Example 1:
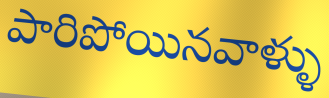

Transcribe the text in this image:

పారిపోయినవాళ్ళు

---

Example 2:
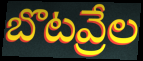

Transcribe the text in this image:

బొటవ్రేల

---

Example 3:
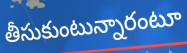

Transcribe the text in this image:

తీసుకుంటున్నారంటూ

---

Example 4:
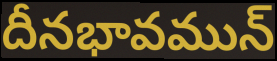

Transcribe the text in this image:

దీనభావమున్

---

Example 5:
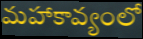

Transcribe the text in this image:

మహాకావ్యంలో